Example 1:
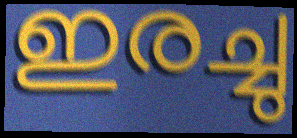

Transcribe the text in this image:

ഇരച്ചു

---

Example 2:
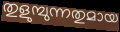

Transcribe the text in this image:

തുളുമ്പുന്നതുമായ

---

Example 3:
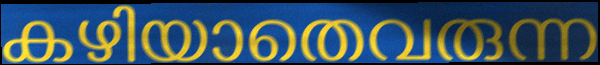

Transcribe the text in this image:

കഴിയാതെവരുന്ന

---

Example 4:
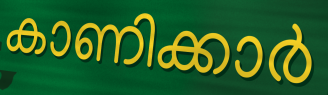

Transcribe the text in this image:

കാണിക്കാർ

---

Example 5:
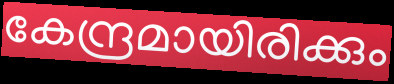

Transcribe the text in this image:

കേന്ദ്രമായിരിക്കും